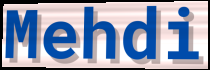
Mehdi